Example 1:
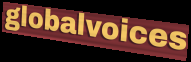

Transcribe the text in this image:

globalvoices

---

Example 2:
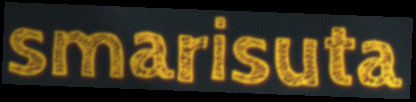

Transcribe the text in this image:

smarisuta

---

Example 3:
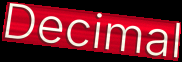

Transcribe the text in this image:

Decimal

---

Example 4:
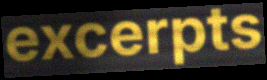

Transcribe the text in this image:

excerpts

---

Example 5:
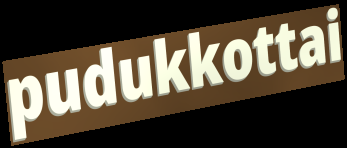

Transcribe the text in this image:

pudukkottai